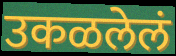
उकळलेलं